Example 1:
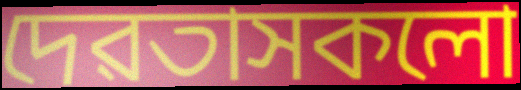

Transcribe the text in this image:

দেৱতাসকলো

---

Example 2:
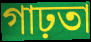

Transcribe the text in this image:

গাঢ়তা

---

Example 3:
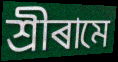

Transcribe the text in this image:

শ্ৰীৰামে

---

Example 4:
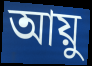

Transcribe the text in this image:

আয়ু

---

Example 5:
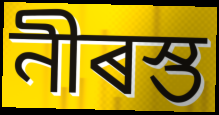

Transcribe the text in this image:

নীৰস্ত